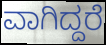
ವಾಗಿದ್ದರೆ